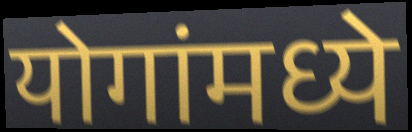
योगांमध्ये